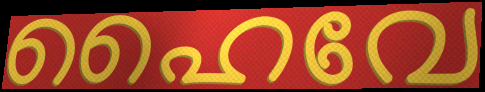
ഹൈവേ